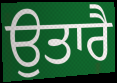
ਉਤਾਰੈ